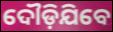
ଦୌଡ଼ିଯିବେ